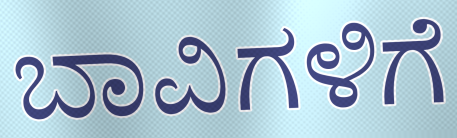
ಬಾವಿಗಳಿಗೆ